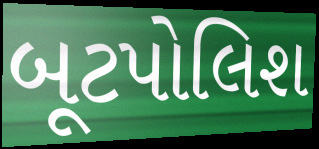
બૂટપોલિશ